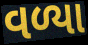
વળ્યા